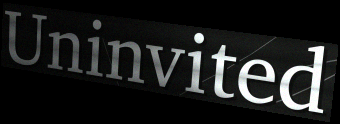
Uninvited